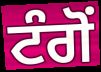
ਟੰਗੋਂ